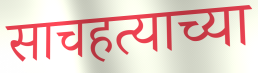
साचहत्याच्या